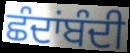
ਛੰਦਾਂਬੰਦੀ